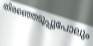
തിരഞ്ഞെടുപ്പുപോലും